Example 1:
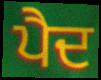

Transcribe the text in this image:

ਪੈਦ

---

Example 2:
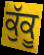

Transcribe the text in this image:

ਕੁੱਕੂ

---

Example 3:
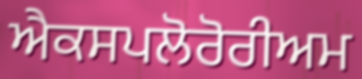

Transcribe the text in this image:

ਐਕਸਪਲੋਰੋਰੀਅਮ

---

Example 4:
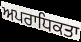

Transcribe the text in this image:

ਅਪਰਾਧਿਕਤਾ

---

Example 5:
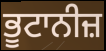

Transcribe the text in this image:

ਭੂਟਾਨੀਜ਼